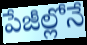
పేజీల్లోనే